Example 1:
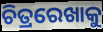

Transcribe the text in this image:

ଚିତ୍ରରେଖାକୁ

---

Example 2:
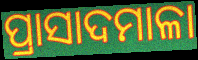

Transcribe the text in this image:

ପ୍ରାସାଦମାଳା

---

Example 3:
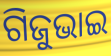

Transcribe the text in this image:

ଗିଜୁଭାଇ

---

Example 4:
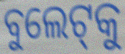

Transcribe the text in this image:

ବୁଲେଟ୍‌କୁ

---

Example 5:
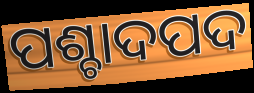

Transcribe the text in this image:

ପଶ୍ଚାଦପଦ